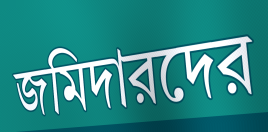
জমিদারদের